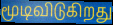
மூடிவிடுகிறது